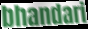
bhandari